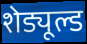
शेड्यूल्ड